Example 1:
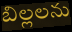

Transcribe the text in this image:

బిల్లలను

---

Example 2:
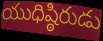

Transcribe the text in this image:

యుధిష్ఠిరుడు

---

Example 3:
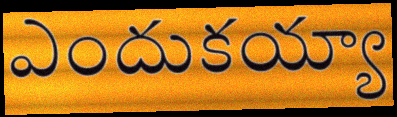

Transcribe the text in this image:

ఎందుకయ్యా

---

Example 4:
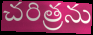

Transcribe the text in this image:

చరిత్రను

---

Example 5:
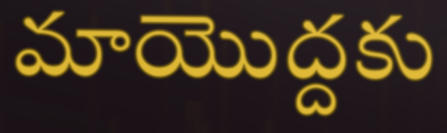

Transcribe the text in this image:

మాయొద్దకు